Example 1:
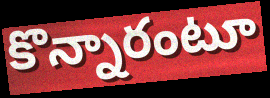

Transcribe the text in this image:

కొన్నారంటూ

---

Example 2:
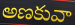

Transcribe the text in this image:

అణకువా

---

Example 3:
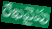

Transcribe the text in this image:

రేఖవైపు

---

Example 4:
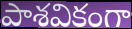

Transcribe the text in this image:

పాశవికంగా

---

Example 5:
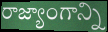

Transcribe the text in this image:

రాజ్యాంగాన్ని